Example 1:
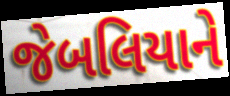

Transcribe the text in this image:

જેબલિયાને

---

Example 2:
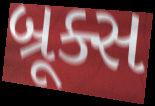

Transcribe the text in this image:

બ્રૂક્સ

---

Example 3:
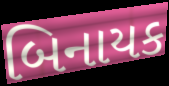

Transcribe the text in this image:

બિનાયક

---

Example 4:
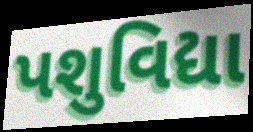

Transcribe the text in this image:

પશુવિદ્યા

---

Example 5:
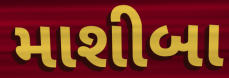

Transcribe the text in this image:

માશીબા